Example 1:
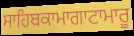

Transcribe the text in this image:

ਸਾਹਿਬਕਾਮਾਗਾਟਾਮਾਰੂ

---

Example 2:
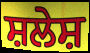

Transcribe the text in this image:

ਸ਼ਲੇਸ਼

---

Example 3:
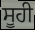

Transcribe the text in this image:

ਸੂਹੀ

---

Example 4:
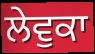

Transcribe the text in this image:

ਲੇਵੁਕਾ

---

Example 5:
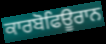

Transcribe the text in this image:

ਕਾਰਬੋਫਿਊਰਾਨ